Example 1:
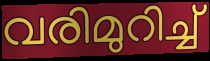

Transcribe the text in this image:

വരിമുറിച്ച്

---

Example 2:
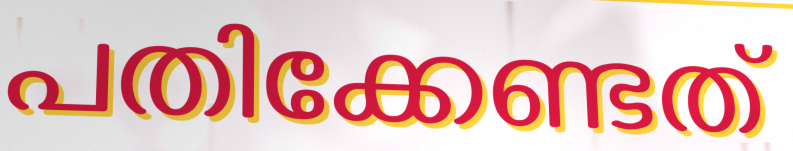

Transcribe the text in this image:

പതിക്കേണ്ടത്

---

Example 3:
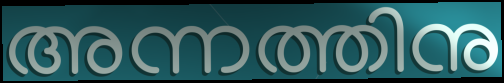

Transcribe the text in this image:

അന്നത്തിനു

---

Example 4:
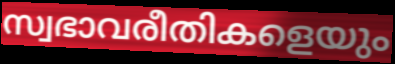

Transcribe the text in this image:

സ്വഭാവരീതികളെയും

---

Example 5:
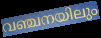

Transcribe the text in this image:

വഞ്ചനയിലും